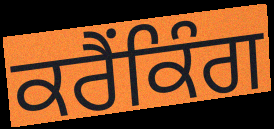
ਕਰੈਂਕਿੰਗ